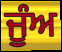
ਜੂੰਅ